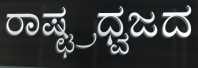
ರಾಷ್ಟ್ರಧ್ವಜದ